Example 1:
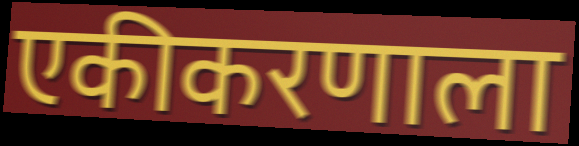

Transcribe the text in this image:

एकीकरणाला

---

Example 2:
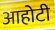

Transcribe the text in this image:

आहोटी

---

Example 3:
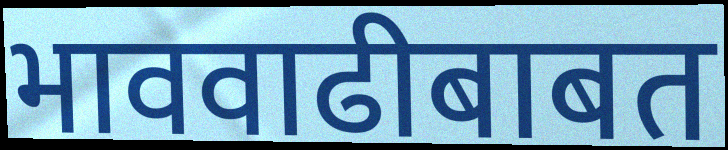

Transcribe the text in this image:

भाववाढीबाबत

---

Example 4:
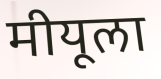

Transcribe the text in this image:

मीयूला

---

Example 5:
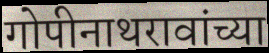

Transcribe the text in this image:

गोपीनाथरावांच्या